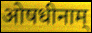
ओषधीनाम्